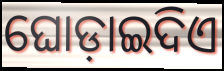
ଘୋଡ଼ାଇଦିଏ